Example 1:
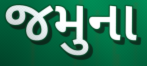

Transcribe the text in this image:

જમુના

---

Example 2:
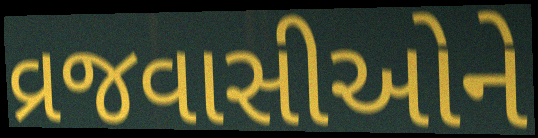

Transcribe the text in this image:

વ્રજવાસીઓને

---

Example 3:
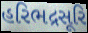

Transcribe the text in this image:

હરિભદ્રસૂરિ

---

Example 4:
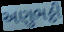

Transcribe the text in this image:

અણુભઠ્ઠી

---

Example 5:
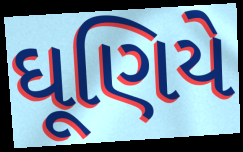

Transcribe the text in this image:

ઘૂણિયે